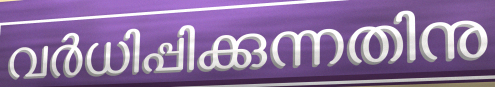
വർധിപ്പിക്കുന്നതിനു